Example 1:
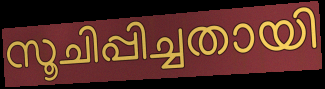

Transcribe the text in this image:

സൂചിപ്പിച്ചതായി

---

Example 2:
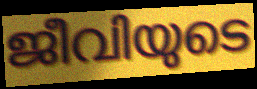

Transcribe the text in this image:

ജീവിയുടെ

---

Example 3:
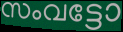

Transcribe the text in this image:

സംവട്ടോ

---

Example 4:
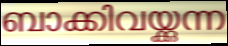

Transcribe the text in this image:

ബാക്കിവയ്ക്കുന്ന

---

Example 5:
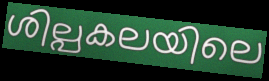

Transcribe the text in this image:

ശില്പകലയിലെ